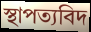
স্থাপত্যবিদ